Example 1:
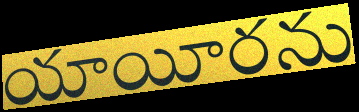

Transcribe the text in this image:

యాయీరను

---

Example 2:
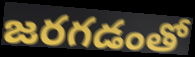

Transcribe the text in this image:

జరగడంతో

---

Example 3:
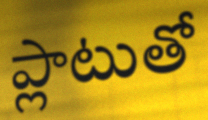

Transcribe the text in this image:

ప్లాటుతో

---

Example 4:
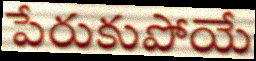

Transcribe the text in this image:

పేరుకుపోయే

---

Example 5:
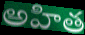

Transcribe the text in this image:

అహిత